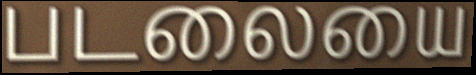
படலையை